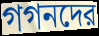
গগনদের